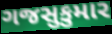
ગજસુકુમાર